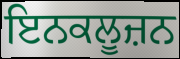
ਇਨਕਲੂਜ਼ਨ